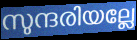
സുന്ദരിയല്ലേ